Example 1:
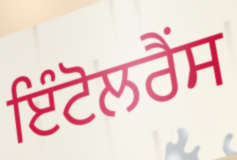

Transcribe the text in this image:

ਇੰਟੋਲਰੈਂਸ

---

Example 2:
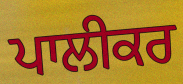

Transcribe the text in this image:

ਪਾਲੀਕਰ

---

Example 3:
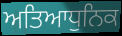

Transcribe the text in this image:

ਅਤਿਆਧੁਨਿਕ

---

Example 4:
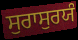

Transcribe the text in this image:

ਸੁਰਾਸੁਰਯੰ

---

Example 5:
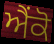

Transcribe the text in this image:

ਐਂਕੋ